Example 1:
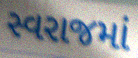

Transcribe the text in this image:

સ્વરાજમાં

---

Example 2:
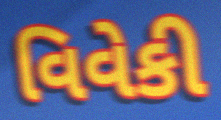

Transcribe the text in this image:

વિવેકી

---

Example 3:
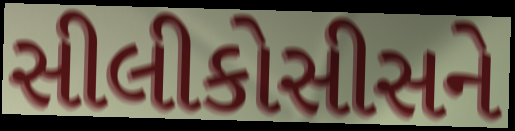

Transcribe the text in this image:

સીલીકોસીસને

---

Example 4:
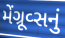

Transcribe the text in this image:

મેંગ્રૂવ્સનું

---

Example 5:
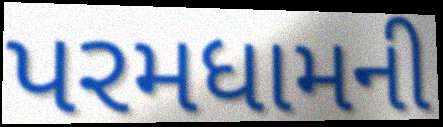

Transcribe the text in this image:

પરમધામની